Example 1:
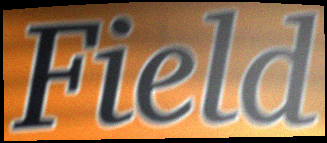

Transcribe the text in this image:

Field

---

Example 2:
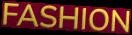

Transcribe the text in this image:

FASHION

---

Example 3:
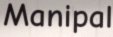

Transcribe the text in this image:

Manipal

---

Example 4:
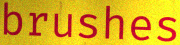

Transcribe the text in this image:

brushes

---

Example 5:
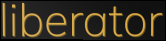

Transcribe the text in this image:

liberator